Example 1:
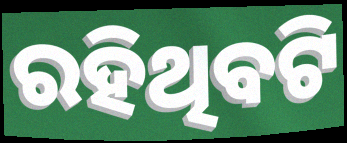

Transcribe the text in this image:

ରହିଥିବଟି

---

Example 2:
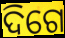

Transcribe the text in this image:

ଦିଗେ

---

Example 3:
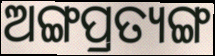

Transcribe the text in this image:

ଅଙ୍ଗପ୍ରତ୍ୟଙ୍ଗ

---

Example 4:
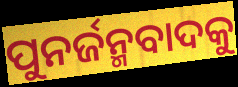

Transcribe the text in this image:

ପୁନର୍ଜନ୍ମବାଦକୁ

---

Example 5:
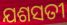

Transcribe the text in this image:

ଯଶସତୀ